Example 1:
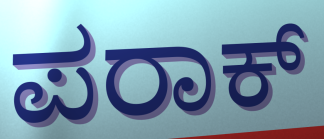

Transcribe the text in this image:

ಪರಾಕ್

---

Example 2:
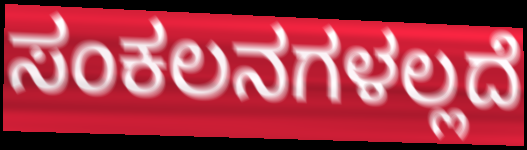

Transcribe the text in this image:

ಸಂಕಲನಗಳಲ್ಲದೆ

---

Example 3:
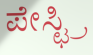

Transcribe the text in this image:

ಪೇಸ್ಟ್ರಿ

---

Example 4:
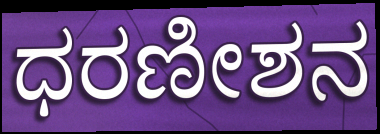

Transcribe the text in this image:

ಧರಣೀಶನ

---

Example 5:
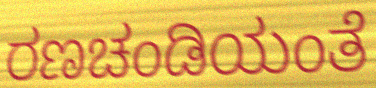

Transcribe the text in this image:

ರಣಚಂಡಿಯಂತೆ